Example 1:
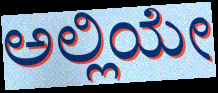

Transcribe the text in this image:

ಅಲ್ಲಿಯೇ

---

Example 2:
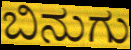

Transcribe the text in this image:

ಬಿನುಗು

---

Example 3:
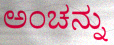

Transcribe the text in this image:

ಅಂಚನ್ನು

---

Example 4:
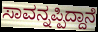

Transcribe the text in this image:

ಸಾವನ್ನಪ್ಪಿದ್ದಾನೆ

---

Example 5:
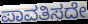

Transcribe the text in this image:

ಪಾವತಿಸದೇ